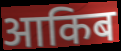
आकिब